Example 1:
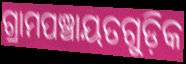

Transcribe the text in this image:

ଗ୍ରାମପଞ୍ଚାୟତଗୁଡ଼ିକ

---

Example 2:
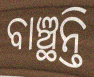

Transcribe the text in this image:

ବାଞ୍ଛନ୍ତି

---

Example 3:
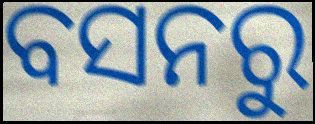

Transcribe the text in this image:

ବସନରୁ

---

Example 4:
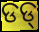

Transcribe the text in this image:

ଡଡ୍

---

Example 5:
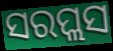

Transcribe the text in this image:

ସରପ୍ଲସ